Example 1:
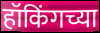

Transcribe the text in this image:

हॉकिंगच्या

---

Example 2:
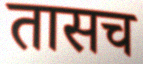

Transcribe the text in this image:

तासच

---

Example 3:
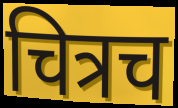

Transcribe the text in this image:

चित्रच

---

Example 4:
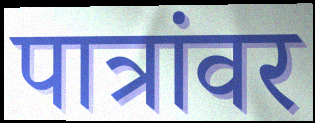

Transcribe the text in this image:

पात्रांवर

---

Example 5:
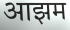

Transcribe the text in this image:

आझम